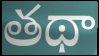
తథా